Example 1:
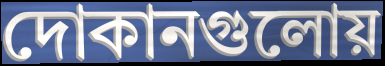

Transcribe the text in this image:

দোকানগুলোয়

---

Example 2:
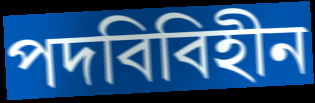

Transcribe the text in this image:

পদবিবিহীন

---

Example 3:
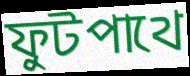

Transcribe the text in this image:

ফুটপাথে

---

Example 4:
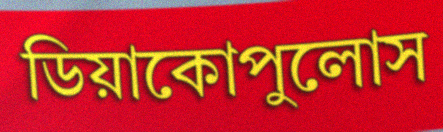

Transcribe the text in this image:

ডিয়াকোপুলোস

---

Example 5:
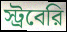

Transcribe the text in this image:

স্ট্রবেরি